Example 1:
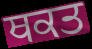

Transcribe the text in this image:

ਥਕਤ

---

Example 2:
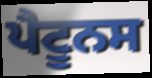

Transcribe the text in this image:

ਪੈਟੂਨਸ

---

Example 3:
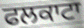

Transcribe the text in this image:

ਫਲਕਾਟਾ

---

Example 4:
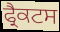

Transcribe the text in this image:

ਫ੍ਰੈਕਟਸ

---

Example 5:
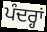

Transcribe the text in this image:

ਪੰਦਰ੍ਹਾਂ